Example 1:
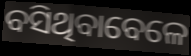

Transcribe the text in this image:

ବସିଥିବାବେଳେ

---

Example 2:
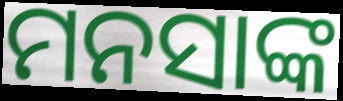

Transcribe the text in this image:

ମନସାଙ୍କ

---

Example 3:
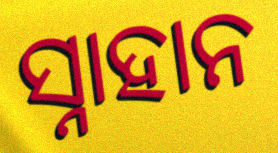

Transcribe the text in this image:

ସ୍ନାହାନ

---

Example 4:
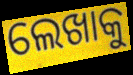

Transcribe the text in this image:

ଲେଖାକୁ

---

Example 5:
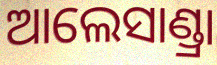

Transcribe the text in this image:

ଆଲେସାଣ୍ଡ୍ରା